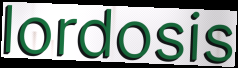
lordosis